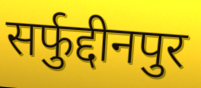
सर्फुद्दीनपुर